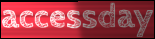
accessday